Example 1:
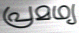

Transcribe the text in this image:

പ്രമഥ്യ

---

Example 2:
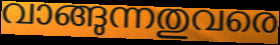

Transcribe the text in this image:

വാങ്ങുന്നതുവരെ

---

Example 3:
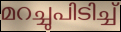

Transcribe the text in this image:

മറച്ചുപിടിച്ച്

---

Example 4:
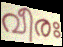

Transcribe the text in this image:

വീരഃ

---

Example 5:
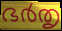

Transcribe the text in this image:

ഭർതൃ